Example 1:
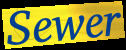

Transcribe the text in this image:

Sewer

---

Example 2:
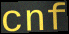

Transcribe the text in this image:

cnf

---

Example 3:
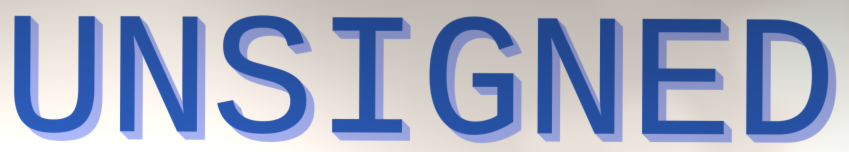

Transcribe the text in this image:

UNSIGNED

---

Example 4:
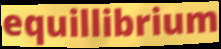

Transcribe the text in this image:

equillibrium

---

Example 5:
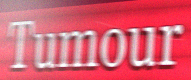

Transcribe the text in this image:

Tumour